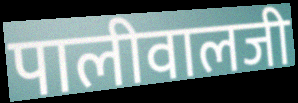
पालीवालजी